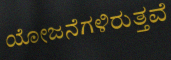
ಯೋಜನೆಗಳಿರುತ್ತವೆ